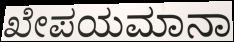
ಖೇಪಯಮಾನಾ